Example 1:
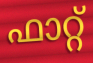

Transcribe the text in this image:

ഫാറ്റ്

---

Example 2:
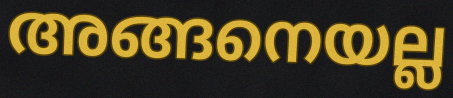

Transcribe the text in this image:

അങ്ങനെയല്ല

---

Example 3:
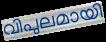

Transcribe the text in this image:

വിപുലമായി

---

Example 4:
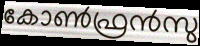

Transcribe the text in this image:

കോൺഫ്രൻസു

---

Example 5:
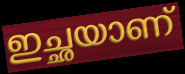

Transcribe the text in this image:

ഇച്ഛയാണ്